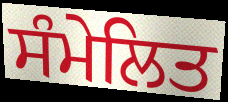
ਸੰਮੇਲਿਤ